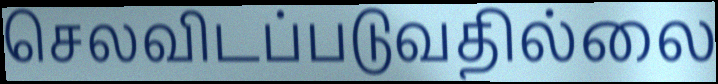
செலவிடப்படுவதில்லை